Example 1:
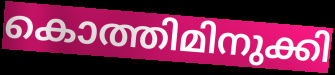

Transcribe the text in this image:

കൊത്തിമിനുക്കി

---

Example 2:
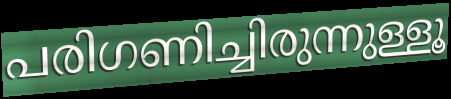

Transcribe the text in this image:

പരിഗണിച്ചിരുന്നുള്ളൂ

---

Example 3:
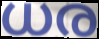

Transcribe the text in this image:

ധര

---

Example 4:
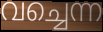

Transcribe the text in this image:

വച്ചെന്ന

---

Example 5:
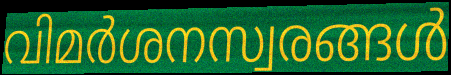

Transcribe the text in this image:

വിമർശനസ്വരങ്ങൾ